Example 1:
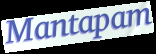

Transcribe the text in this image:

Mantapam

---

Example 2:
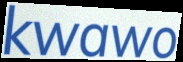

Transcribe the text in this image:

kwawo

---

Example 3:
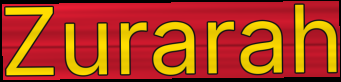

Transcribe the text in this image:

Zurarah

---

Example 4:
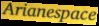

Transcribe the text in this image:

Arianespace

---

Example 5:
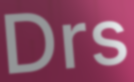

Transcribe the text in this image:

Drs